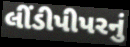
લીંડીપીપરનું